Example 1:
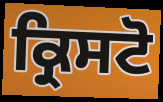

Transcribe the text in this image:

ਕ੍ਰਿਸਟੋ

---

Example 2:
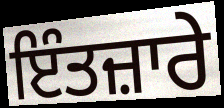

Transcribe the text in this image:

ਇੰਤਜ਼ਾਰੇ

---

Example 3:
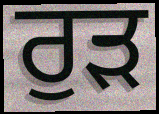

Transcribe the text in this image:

ਰੁੜ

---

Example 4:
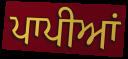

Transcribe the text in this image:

ਪਾਪੀਆਂ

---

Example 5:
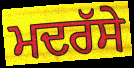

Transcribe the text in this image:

ਮਦਰੱਸੇ